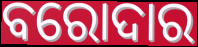
ବରୋଦାର